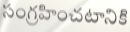
సంగ్రహించటానికి